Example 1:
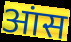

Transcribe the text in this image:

आंस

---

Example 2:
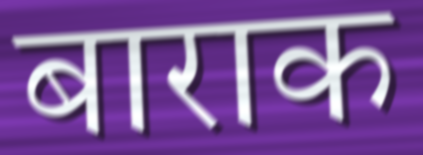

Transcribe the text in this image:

बाराक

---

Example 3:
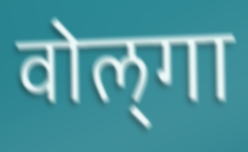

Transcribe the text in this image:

वोल्गा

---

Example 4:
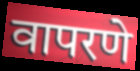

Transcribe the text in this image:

वापरणे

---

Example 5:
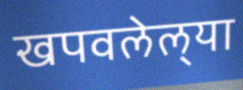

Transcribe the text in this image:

खपवलेल्या